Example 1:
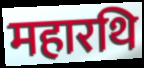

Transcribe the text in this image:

महारथि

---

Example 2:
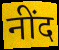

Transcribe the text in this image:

नींद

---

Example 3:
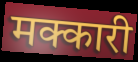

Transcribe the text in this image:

मक्कारी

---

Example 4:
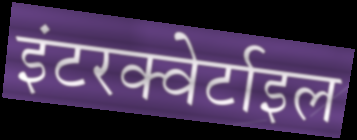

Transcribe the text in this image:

इंटरक्वेर्टाइल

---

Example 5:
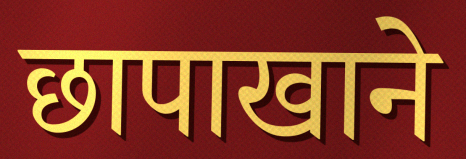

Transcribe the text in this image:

छापाखाने